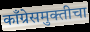
काँग्रेसमुक्तीचा